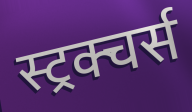
स्ट्रक्चर्स